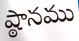
ష్ఠానము